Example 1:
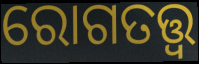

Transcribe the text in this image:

ରୋଗତତ୍ତ୍ୱ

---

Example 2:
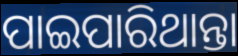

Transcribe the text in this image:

ପାଇପାରିଥାନ୍ତା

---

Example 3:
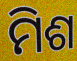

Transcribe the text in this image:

ମିଶ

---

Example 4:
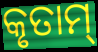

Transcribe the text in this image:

କୃତାମ୍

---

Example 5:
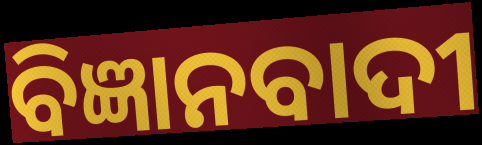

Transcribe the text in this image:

ବିଜ୍ଞାନବାଦୀ